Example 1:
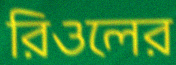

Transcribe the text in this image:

রিওলের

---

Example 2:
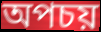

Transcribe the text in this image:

অপচয়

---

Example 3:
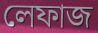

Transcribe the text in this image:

লেফাজ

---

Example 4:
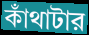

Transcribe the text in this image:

কাঁথাটার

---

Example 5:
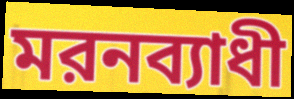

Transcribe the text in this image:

মরনব্যাধী